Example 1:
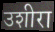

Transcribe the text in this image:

उशीरा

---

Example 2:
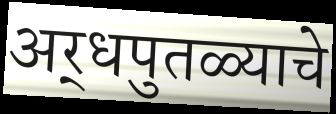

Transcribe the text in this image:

अर्धपुतळ्याचे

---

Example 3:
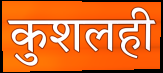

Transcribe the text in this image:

कुशलही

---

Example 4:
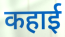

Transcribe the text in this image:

कहाई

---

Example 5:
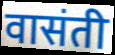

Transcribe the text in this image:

वासंती